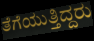
ತೆಗೆಯುತ್ತಿದ್ದರು